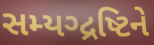
સમ્યગ્દ્રષ્ટિને